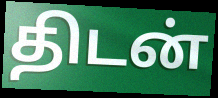
திடன்